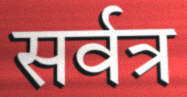
सर्वत्र